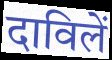
दाविलें